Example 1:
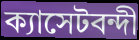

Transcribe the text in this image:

ক্যাসেটবন্দী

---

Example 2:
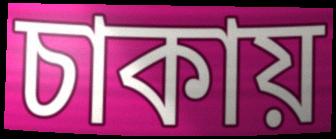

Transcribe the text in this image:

চাকায়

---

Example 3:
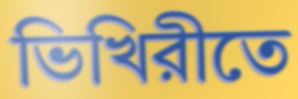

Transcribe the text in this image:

ভিখিরীতে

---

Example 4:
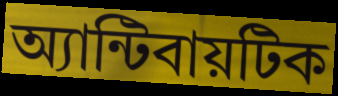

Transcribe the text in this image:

অ্যান্টিবায়টিক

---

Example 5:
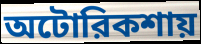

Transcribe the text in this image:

অটোরিকশায়